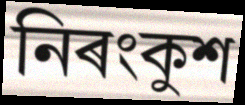
নিৰংকুশ